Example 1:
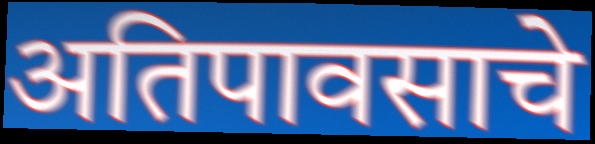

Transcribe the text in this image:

अतिपावसाचे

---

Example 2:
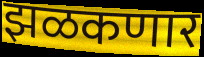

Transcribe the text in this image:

झळकणार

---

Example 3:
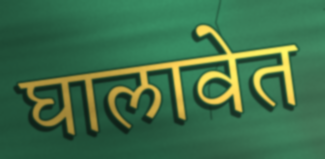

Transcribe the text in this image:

घालावेत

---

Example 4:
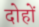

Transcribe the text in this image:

दोहों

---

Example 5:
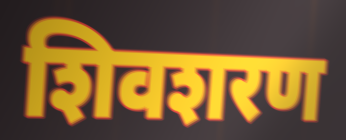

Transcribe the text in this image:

शिवशरण